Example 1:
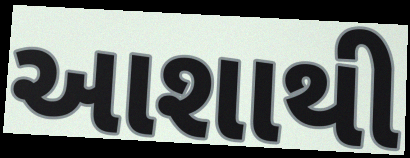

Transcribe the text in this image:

આશાથી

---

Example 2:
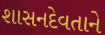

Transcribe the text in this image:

શાસનદેવતાને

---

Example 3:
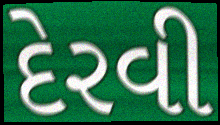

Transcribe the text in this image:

દેરવી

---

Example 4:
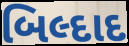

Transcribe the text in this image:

બિલ્દાદ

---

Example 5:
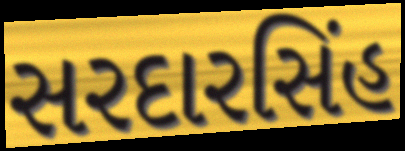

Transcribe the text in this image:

સરદારસિંહ